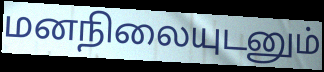
மனநிலையுடனும்